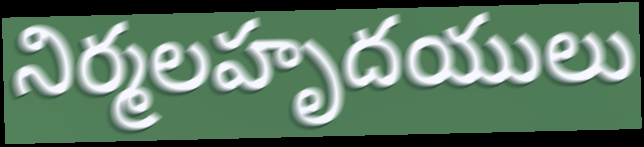
నిర్మలహృదయులు